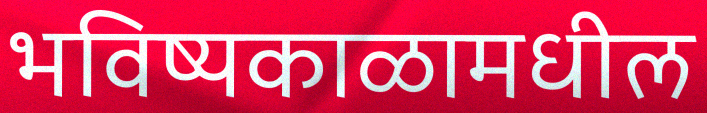
भविष्यकाळामधील